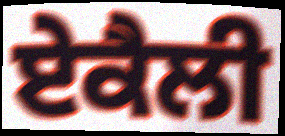
ਏਕੈਲੀ